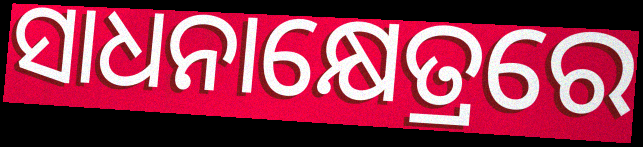
ସାଧନାକ୍ଷେତ୍ରରେ